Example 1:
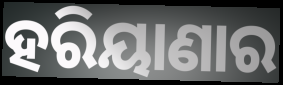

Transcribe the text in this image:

ହରିୟାଣାର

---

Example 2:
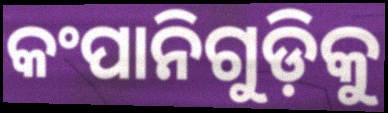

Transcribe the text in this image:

କଂପାନିଗୁଡ଼ିକୁ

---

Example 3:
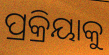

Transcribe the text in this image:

ପ୍ରକ୍ରିୟାକୁ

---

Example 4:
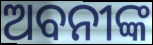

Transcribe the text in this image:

ଅବନୀଙ୍କ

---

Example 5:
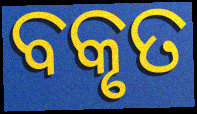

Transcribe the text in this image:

ବକୃତ